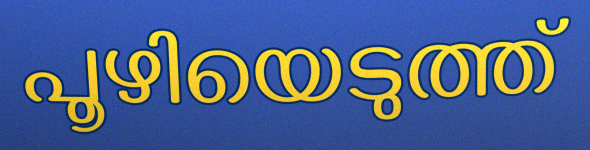
പൂഴിയെടുത്ത്